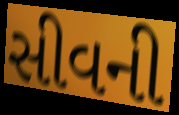
સીવની